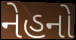
નેહનો